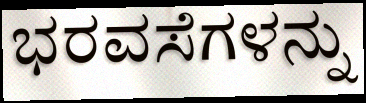
ಭರವಸೆಗಳನ್ನು